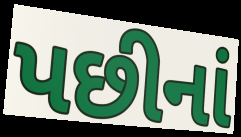
પછીનાં